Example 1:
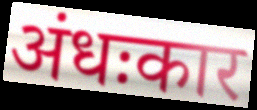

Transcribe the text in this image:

अंधःकार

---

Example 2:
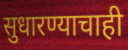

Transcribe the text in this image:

सुधारण्याचाही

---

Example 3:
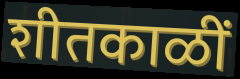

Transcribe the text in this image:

शीतकाळीं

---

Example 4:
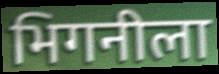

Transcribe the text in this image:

भिगनीला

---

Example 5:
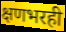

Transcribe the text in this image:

क्षणभरही